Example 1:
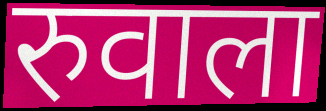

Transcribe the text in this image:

रुवाला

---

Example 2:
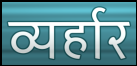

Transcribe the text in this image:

व्यर्हार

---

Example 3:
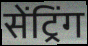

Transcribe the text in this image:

सेंट्रिंग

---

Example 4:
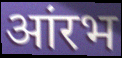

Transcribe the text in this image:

आंरभ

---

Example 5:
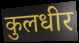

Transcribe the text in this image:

कुलधीर